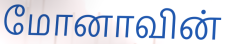
மோனாவின்